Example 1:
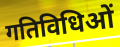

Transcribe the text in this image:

गतिविधिओं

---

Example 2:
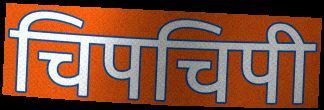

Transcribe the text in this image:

चिपचिपी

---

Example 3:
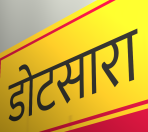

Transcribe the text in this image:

डोटसारा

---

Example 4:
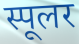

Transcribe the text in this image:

स्पूलर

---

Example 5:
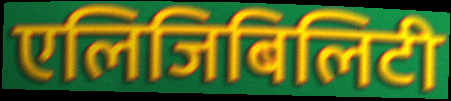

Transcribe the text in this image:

एलिजिबिलिटी